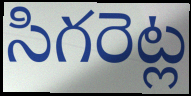
సిగరెట్ల